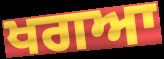
ਖਗਆ